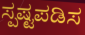
ಸ್ಪಷ್ಟಪಡಿಸ